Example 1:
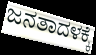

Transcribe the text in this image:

ಜನತಾದಳಕ್ಕೆ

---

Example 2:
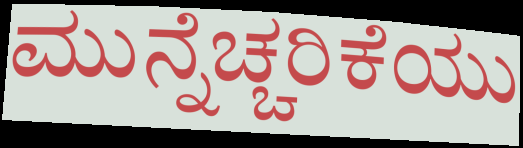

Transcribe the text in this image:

ಮುನ್ನೆಚ್ಚರಿಕೆಯು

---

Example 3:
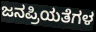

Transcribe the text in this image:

ಜನಪ್ರಿಯತೆಗಳ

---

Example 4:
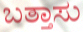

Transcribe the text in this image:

ಬತ್ತಾಸು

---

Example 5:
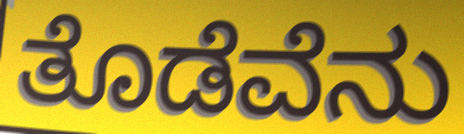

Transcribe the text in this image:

ತೊಡೆವೆನು